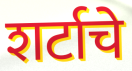
शर्टाचे